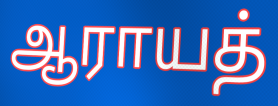
ஆராயத்